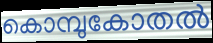
കൊമ്പുകോതൽ